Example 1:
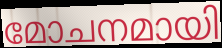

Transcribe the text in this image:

മോചനമായി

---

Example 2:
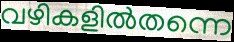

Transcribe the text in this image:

വഴികളിൽതന്നെ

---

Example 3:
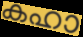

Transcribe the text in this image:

കഹാ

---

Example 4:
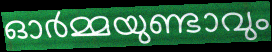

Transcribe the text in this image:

ഓർമ്മയുണ്ടാവും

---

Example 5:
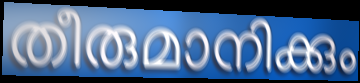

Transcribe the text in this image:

തീരുമാനിക്കും